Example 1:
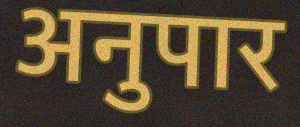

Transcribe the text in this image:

अनुपार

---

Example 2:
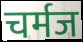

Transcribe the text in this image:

चर्मज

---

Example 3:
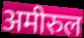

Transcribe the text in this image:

अमीरुल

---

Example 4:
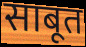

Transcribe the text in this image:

साबूत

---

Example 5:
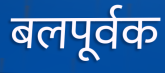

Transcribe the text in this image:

बलपूर्वक